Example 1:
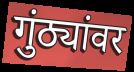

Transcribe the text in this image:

गुंठ्यांवर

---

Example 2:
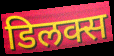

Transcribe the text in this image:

डिलक्स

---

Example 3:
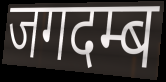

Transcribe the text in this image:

जगदम्ब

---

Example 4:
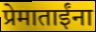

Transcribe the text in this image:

प्रेमाताईंना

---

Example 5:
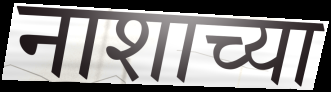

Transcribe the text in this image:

नाशाच्या